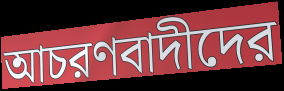
আচরণবাদীদের